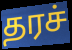
தரச்